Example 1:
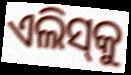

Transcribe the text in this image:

ଏଲିସ୍‌କୁ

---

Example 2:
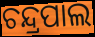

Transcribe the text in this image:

ଚନ୍ଦ୍ରପାଲ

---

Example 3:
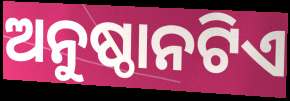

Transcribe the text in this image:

ଅନୁଷ୍ଠାନଟିଏ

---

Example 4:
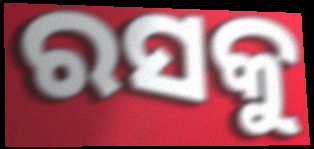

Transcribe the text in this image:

ରସକୁ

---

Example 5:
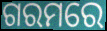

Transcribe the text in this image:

ଗରମରେ